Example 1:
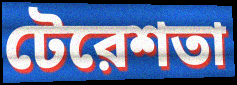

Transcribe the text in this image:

টেরেশতা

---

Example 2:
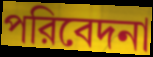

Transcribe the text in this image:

পরিবেদনা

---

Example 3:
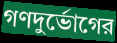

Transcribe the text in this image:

গণদুর্ভোগের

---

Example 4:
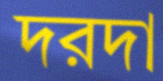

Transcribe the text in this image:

দরদা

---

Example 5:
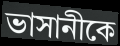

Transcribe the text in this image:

ভাসানীকে